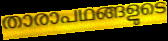
താരാപഥങ്ങളുടെ